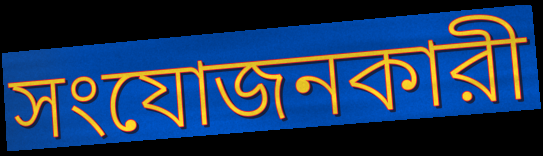
সংযোজনকারী